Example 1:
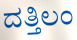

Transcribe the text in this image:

ದತ್ತಿಲಂ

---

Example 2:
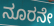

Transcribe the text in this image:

ನೂರನೇ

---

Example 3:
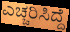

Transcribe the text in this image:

ಎಚ್ಚರಿಸಿದ್ದೆ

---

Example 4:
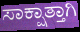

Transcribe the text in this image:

ಸಾಕ್ಷಾತ್ತಾಗಿ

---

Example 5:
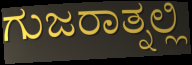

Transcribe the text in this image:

ಗುಜರಾತ್ನಲ್ಲಿ